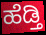
ಹೆಡ್ತಿ